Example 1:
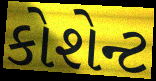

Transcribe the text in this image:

કોશેન્ટ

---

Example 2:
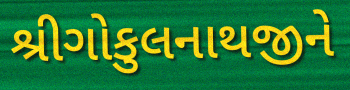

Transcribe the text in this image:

શ્રીગોકુલનાથજીને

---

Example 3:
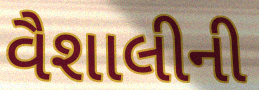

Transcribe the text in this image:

વૈશાલીની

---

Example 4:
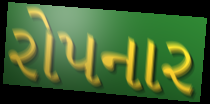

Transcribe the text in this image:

રોપનાર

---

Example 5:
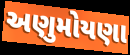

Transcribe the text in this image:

અણુમોયણા